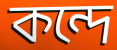
কন্দে